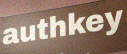
authkey